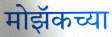
मोझॅकच्या